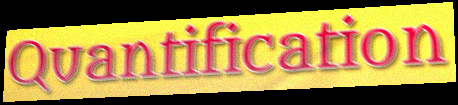
Quantification